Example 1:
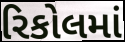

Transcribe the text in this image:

રિકોલમાં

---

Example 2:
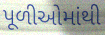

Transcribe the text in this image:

પૂળીઓમાંથી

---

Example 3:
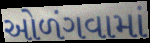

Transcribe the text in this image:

ઓળંગવામાં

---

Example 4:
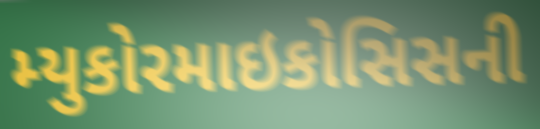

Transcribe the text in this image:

મ્યુકોરમાઇકોસિસની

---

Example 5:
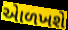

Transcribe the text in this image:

એાળખશે